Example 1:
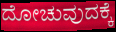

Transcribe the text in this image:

ದೋಚುವುದಕ್ಕೆ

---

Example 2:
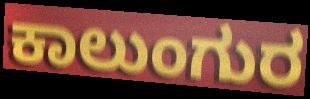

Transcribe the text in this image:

ಕಾಲುಂಗುರ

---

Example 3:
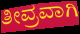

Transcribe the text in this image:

ತೀವ್ರವಾಗಿ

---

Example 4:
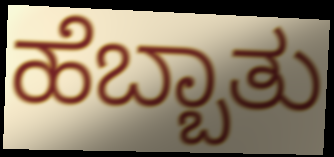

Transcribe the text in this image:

ಹೆಬ್ಬಾತು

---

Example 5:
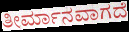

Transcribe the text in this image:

ತೀರ್ಮಾನವಾಗದೆ